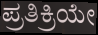
ಪ್ರತಿಕ್ರಿಯೇ